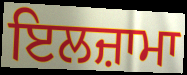
ਇਲਜ਼ਾਮਾ